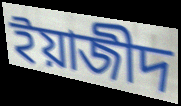
ইয়াজীদ